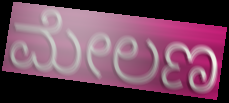
ಮೇಲಣ